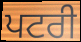
ਪਟਰੀ